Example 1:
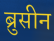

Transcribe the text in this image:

ब्रुसीन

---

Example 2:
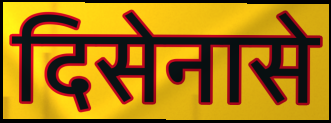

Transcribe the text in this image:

दिसेनासे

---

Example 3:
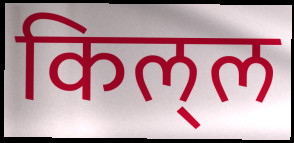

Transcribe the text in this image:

किल्ल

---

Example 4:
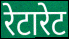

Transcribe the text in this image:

रेटारेट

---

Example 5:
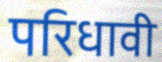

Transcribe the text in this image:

परिधावी